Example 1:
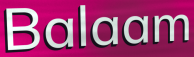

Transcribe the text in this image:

Balaam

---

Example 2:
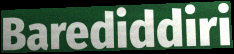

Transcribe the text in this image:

Barediddiri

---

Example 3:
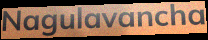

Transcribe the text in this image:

Nagulavancha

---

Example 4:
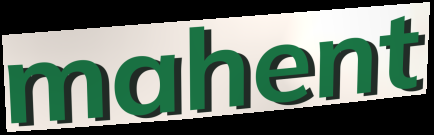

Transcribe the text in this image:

mahent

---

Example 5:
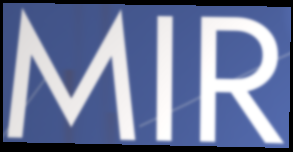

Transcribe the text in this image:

MIR